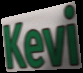
Kevi